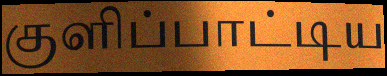
குளிப்பாட்டிய